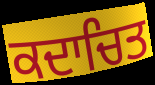
ਕਦਾਚਿਤ